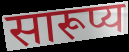
सारूप्य